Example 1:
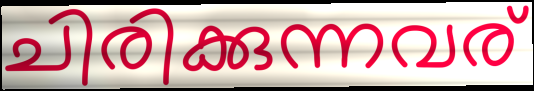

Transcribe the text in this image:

ചിരിക്കുന്നവര്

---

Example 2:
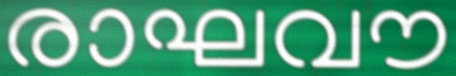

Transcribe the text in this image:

രാഘവൗ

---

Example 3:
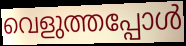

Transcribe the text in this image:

വെളുത്തപ്പോൾ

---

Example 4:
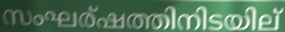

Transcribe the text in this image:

സംഘര്ഷത്തിനിടയില്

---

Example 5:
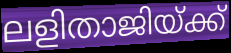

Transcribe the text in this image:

ലളിതാജിയ്ക്ക്